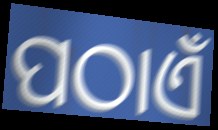
ପଠାଏଁ